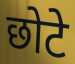
छोटे